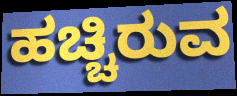
ಹಚ್ಚಿರುವ